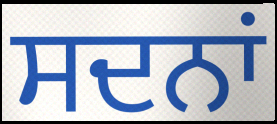
ਸਦਨਾਂ